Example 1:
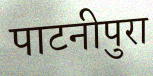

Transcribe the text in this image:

पाटनीपुरा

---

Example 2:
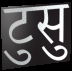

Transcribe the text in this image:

टुसु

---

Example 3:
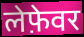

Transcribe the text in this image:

लेफ़ेवर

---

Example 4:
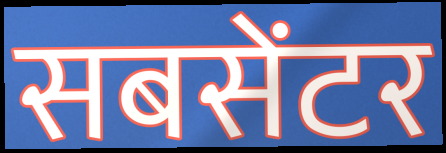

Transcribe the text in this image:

सबसेंटर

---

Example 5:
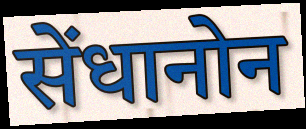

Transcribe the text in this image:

सेंधानोन